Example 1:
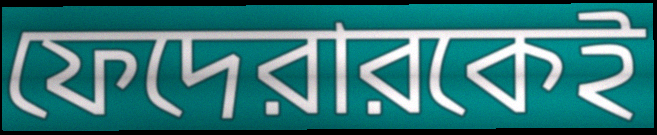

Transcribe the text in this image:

ফেদেরারকেই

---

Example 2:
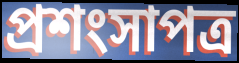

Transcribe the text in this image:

প্রশংসাপত্র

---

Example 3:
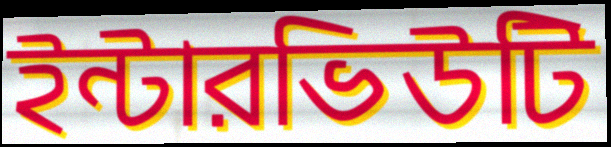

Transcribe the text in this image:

ইন্টারভিউটি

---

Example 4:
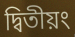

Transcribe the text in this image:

দ্বিতীয়ং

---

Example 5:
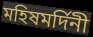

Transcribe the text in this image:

মহিষমর্দিনী